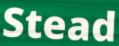
Stead